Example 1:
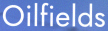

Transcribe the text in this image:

Oilfields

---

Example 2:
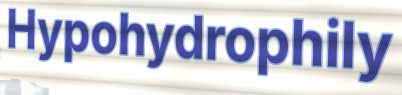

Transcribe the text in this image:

Hypohydrophily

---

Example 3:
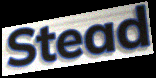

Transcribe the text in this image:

Stead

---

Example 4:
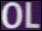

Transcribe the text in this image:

OL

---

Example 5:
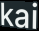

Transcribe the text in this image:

kai